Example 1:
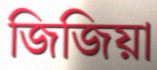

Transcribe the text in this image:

জিজিয়া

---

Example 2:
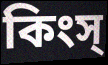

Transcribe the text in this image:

কিংস্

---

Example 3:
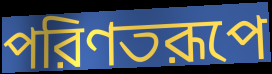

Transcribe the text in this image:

পরিণতরূপে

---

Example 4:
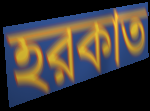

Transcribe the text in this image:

হরকাত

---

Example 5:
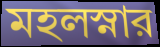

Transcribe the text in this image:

মহলস্নার